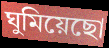
ঘুমিয়েছো